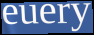
euery